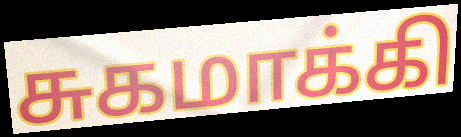
சுகமாக்கி